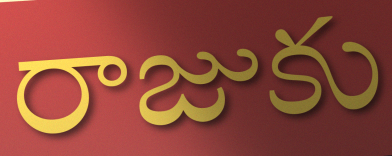
రాజుకు